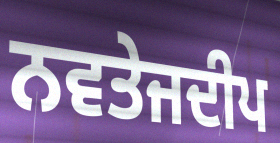
ਨਵਤੇਜਦੀਪ